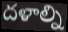
దళాల్ని